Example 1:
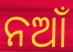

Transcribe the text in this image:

ନଆଁ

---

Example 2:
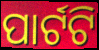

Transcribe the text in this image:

ପାର୍ଟଟି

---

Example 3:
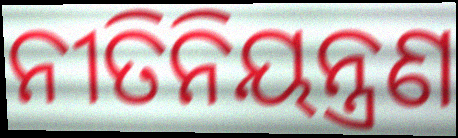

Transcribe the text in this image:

ନୀତିନିୟନ୍ତ୍ରଣ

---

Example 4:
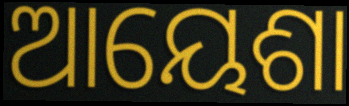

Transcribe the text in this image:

ଆୟେଶା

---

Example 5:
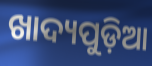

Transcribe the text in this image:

ଖାଦ୍ୟପୁଡ଼ିଆ